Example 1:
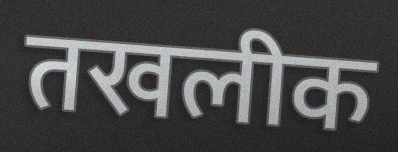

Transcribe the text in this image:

तखलीक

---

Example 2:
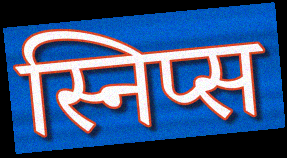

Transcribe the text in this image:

स्निप्स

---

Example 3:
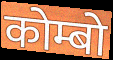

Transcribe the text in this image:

कोम्बो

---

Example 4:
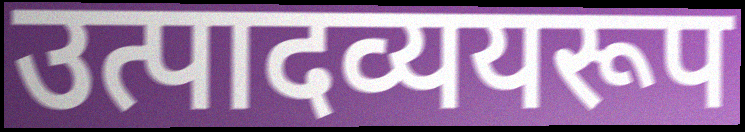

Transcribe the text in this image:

उत्पादव्ययरूप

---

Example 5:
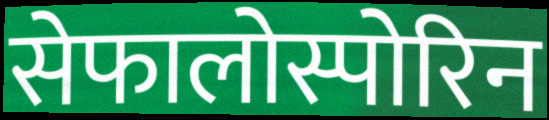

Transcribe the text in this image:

सेफालोस्पोरिन